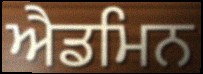
ਐਡਮਿਨ